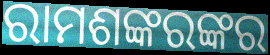
ରାମଶଙ୍କରଙ୍କର